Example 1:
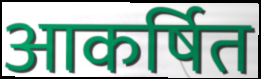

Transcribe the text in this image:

आकर्षित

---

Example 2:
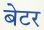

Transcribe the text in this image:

बेटर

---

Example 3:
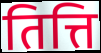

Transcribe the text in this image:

तित्ति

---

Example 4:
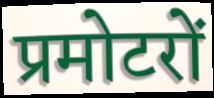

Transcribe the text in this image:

प्रमोटरों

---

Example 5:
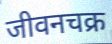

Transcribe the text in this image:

जीवनचक्र